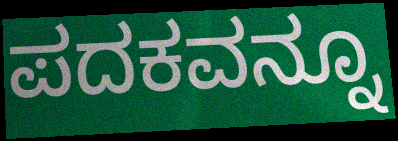
ಪದಕವನ್ನೂ